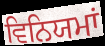
ਵਿਨਿਯਮਾਂ